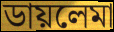
ডায়লেমা